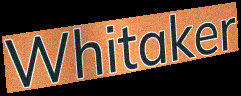
Whitaker